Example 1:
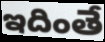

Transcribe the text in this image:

ఇదింతే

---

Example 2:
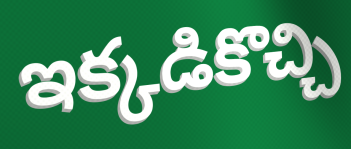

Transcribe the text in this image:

ఇక్కడికొచ్చి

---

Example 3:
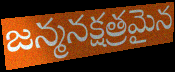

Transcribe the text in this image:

జన్మనక్షత్రమైన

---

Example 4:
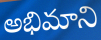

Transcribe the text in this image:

అభిమాని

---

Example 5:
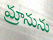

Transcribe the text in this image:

మ్రానును